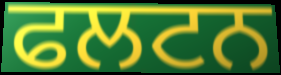
ਫਲਟਨ